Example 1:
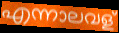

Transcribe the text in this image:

എന്നാലവള്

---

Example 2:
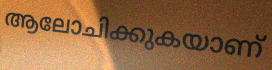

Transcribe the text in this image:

ആലോചിക്കുകയാണ്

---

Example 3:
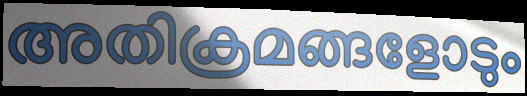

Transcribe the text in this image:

അതിക്രമങ്ങളോടും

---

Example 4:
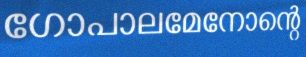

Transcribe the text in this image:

ഗോപാലമേനോന്റെ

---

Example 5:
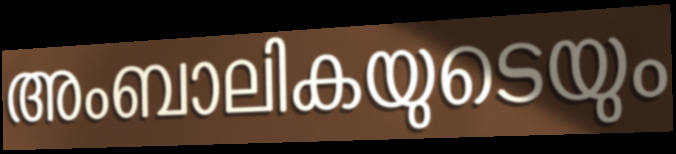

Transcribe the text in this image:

അംബാലികയുടെയും